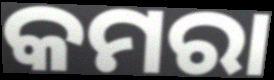
କମରା